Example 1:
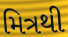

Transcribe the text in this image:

મિત્રથી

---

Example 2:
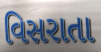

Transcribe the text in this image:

વિસરાતા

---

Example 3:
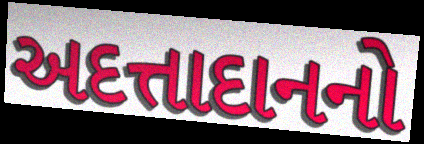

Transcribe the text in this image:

અદત્તાદાનનો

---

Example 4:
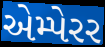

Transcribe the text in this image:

એમ્પેરર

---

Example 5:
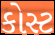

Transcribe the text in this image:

કોસ્ટ